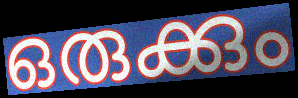
ഒരുക്കും